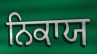
ਨਿਕਾਯ